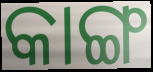
କାଙ୍ଗ